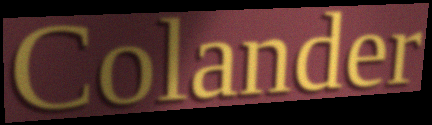
Colander